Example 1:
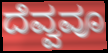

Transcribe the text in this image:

ದೆವ್ವವೂ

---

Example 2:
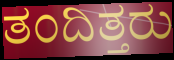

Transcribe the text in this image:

ತಂದಿತ್ತರು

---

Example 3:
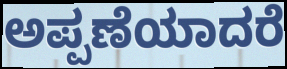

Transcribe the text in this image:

ಅಪ್ಪಣೆಯಾದರೆ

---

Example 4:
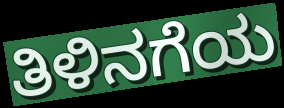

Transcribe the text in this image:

ತಿಳಿನಗೆಯ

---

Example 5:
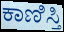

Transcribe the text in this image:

ಕಾಣಿಸ್ತಿ